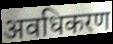
अवधिकरण